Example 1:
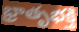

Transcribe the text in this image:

భ్రాతృభక్తి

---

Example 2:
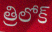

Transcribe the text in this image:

త్రిలోక్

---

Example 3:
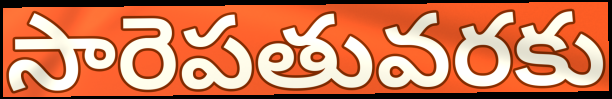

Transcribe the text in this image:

సారెపతువరకు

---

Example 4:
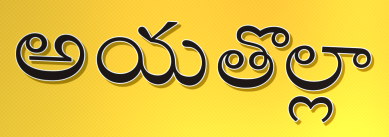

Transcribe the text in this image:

అయతొల్లా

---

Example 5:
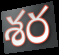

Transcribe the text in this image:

శర